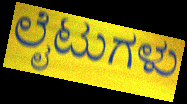
ಲೈಟುಗಳು